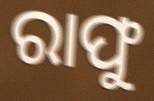
ରାଫୁ